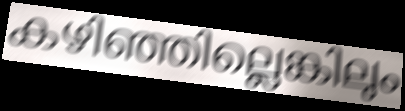
കഴിഞ്ഞില്ലെങ്കിലും